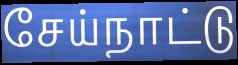
சேய்நாட்டு